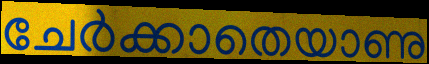
ചേർക്കാതെയാണു